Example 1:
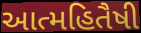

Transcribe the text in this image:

આત્મહિતૈષી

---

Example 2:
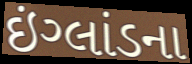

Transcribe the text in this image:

ઇંગ્લાંડના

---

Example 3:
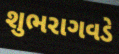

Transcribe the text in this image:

શુભરાગવડે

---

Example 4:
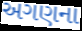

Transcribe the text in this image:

અગણના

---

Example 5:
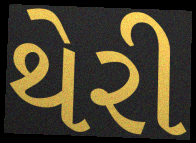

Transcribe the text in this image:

થેરી